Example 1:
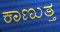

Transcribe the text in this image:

ಕಾಣುತ್ತ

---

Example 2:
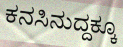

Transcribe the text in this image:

ಕನಸಿನುದ್ದಕ್ಕೂ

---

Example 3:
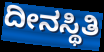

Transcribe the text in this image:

ದೀನಸ್ಥಿತಿ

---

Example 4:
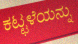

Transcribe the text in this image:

ಕಟ್ಟಳೆಯನ್ನು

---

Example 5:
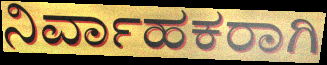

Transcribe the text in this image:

ನಿರ್ವಾಹಕರಾಗಿ